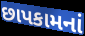
છાપકામનાં